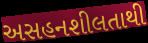
અસહનશીલતાથી